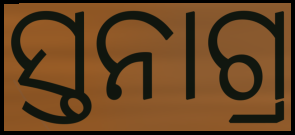
ସ୍ତନାଗ୍ର